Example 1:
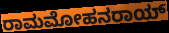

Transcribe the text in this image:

ರಾಮಮೋಹನರಾಯ್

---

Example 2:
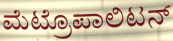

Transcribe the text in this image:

ಮೆಟ್ರೊಪಾಲಿಟನ್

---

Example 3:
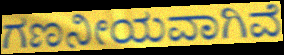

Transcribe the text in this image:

ಗಣನೀಯವಾಗಿವೆ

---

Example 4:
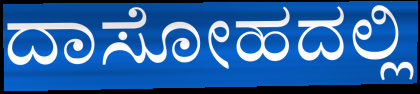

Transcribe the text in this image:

ದಾಸೋಹದಲ್ಲಿ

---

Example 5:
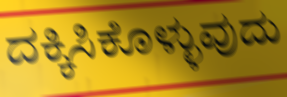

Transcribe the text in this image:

ದಕ್ಕಿಸಿಕೊಳ್ಳುವುದು